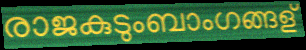
രാജകുടുംബാംഗങ്ങള്